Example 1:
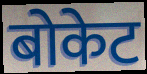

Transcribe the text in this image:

बोकेट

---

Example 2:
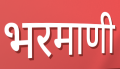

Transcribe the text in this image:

भरमाणी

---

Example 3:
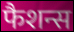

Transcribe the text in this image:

फैशन्स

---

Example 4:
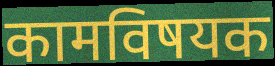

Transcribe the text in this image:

कामविषयक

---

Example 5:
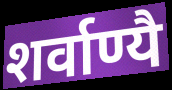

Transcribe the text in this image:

शर्वाण्यै